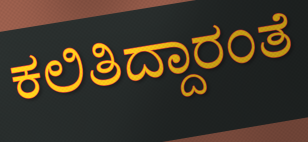
ಕಲಿತಿದ್ದಾರಂತೆ